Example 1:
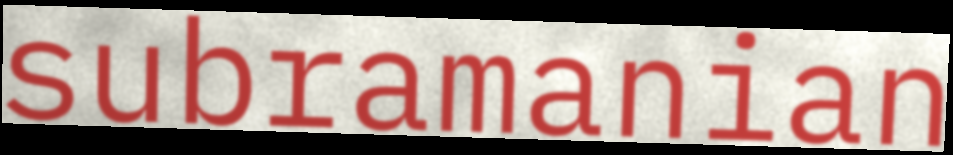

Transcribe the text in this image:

subramanian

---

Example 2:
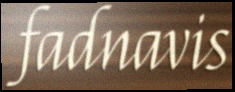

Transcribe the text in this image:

fadnavis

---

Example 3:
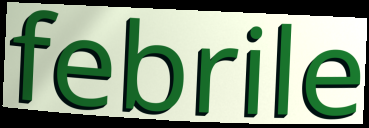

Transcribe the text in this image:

febrile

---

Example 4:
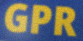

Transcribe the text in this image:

GPR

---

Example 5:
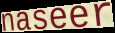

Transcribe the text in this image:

naseer